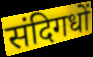
संदिगधों